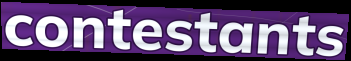
contestants